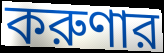
করুণার